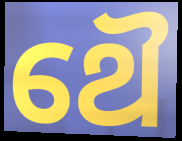
ଥୈ